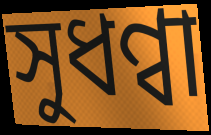
সুধণ্বা